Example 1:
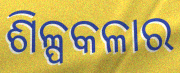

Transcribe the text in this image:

ଶିଳ୍ପକଳାର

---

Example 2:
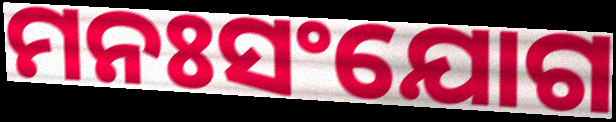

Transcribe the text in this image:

ମନଃସଂଯୋଗ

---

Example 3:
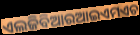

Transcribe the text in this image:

ଏଲଜିବିଆରଆଇଏମଏଚ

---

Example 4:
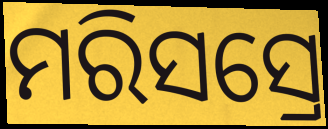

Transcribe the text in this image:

ମରିସସ୍ରେ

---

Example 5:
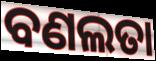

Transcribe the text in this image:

ବଣଲତା